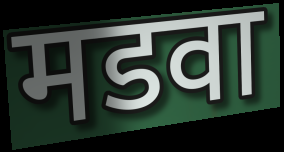
मडवा